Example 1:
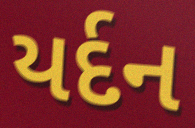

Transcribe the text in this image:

યર્દન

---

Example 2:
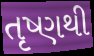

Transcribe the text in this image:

તૃષ્ણથી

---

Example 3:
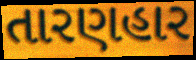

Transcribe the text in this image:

તારણહાર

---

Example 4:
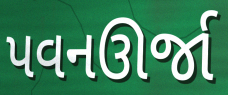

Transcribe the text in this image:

પવનઊર્જા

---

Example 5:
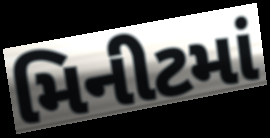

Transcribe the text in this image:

મિનીટમાં